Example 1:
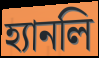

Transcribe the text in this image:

হ্যানলি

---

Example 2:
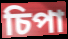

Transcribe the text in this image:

চিপা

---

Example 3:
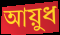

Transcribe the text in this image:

আয়ুধ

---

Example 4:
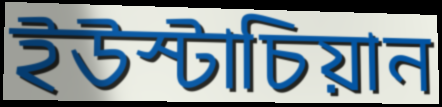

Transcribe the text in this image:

ইউস্টাচিয়ান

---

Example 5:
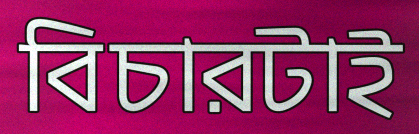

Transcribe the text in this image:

বিচারটাই